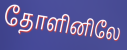
தோளினிலே